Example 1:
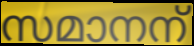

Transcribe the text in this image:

സമാനന്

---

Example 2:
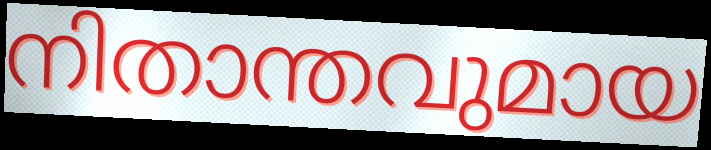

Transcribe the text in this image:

നിതാന്തവുമായ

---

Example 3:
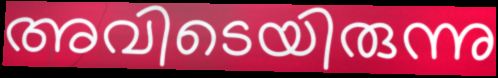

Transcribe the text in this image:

അവിടെയിരുന്നു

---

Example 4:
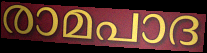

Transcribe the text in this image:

രാമപാദ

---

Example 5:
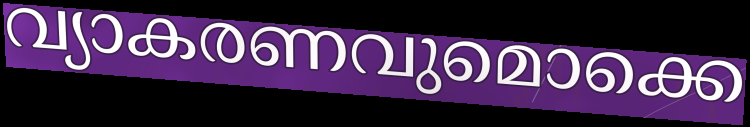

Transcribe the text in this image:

വ്യാകരണവുമൊക്കെ